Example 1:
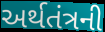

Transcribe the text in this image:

અર્થતંત્રની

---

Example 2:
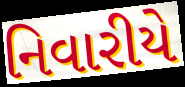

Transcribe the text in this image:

નિવારીયે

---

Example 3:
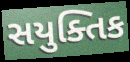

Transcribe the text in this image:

સયુક્તિક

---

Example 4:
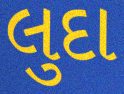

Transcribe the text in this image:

લુદા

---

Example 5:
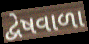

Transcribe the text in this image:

દ્વેષવાળા